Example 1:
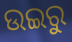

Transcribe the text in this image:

ଉଇରୁ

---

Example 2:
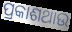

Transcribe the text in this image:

ପ୍ରକାଶଥାଉ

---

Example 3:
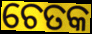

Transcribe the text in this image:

ଚେତକ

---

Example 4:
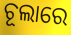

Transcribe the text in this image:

ଚୂଲାରେ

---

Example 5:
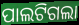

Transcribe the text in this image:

ପାଲଟିଗଲା